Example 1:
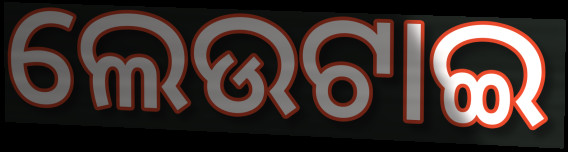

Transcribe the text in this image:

ଲେଉଟାଇ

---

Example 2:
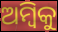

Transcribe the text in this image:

ଅମ୍ବିକୁ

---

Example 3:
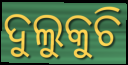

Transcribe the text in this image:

ଦୁଲୁକୁଚି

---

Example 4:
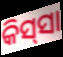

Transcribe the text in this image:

କିସ୍‍ସା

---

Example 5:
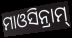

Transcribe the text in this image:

ମାଓସିନ୍ରାମ୍